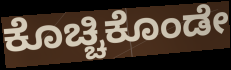
ಕೊಚ್ಚಿಕೊಂಡೇ